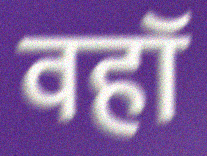
वहॉ